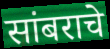
सांबराचे